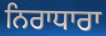
ਨਿਰਾਧਾਰਾ